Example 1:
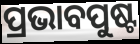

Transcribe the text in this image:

ପ୍ରଭାବପୁଷ୍ଟ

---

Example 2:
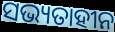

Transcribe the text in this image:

ସଭ୍ୟତାହୀନ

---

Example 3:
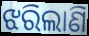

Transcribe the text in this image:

ଝରିଲାଣି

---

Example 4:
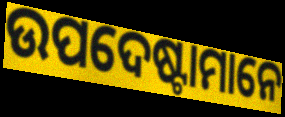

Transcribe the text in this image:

ଉପଦେଷ୍ଟାମାନେ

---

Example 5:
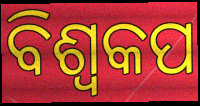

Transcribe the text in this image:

ବିଶ୍ବକପ